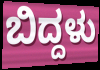
ಬಿದ್ದಳು